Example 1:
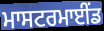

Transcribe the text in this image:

ਮਾਸਟਰਮਾਈਂਡ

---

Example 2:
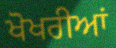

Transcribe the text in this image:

ਖੋਖਰੀਆਂ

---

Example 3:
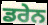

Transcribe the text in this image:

ਡਰੇਨ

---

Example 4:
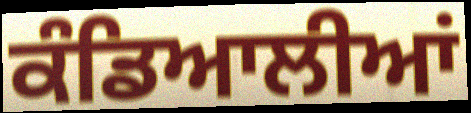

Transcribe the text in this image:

ਕੰਡਿਆਲੀਆਂ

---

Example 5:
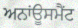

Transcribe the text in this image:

ਅਨਾਂਊਸਮੈਂਟ